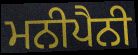
ਮਨੀਪੈਨੀ